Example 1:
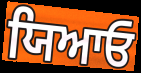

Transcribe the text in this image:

ਯਿਆਓ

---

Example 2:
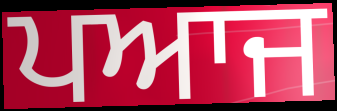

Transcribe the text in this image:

ਪਆਜ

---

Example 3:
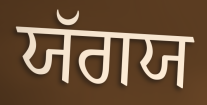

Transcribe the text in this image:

ਯੱਗਯ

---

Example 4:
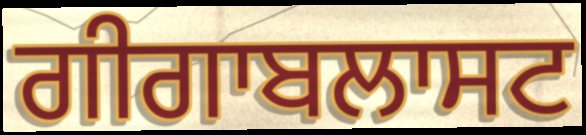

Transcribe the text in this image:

ਗੀਗਾਬਲਾਸਟ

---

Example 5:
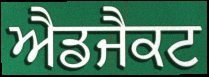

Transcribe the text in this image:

ਐਡਜੈਕਟ